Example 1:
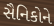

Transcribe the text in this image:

સૈનિકોને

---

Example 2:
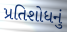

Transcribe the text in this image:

પ્રતિશોધનું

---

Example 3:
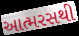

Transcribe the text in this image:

આત્મરસથી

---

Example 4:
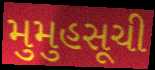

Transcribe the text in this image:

મુમુહસૂચી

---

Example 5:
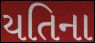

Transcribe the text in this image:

યતિના